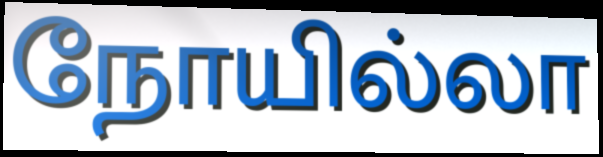
நோயில்லா